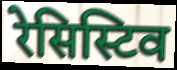
रेसिस्टिव